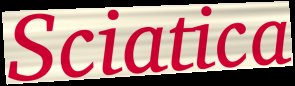
Sciatica